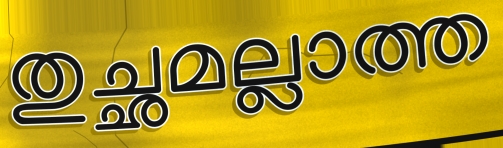
തുച്ഛമല്ലാത്ത